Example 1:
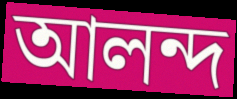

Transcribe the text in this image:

আলন্দ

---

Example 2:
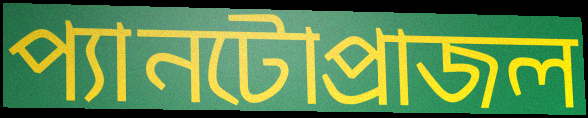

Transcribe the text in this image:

প্যানটোপ্রাজল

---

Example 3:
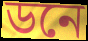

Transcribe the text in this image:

ডনে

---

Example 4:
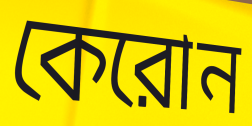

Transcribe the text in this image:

কেরোন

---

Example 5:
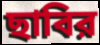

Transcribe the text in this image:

ছাবির